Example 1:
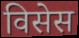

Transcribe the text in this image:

विसेस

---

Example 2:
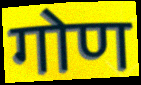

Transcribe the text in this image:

गोण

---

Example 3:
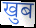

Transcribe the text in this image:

खुब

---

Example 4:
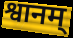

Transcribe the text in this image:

श्वानम्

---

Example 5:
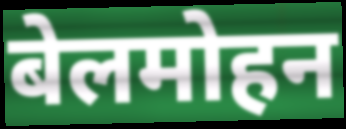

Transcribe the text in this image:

बेलमोहन